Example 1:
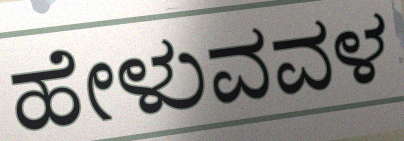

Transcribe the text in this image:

ಹೇಳುವವಳ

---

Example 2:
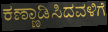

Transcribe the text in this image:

ಕಣ್ಣಾಡಿಸಿದವಳಿಗೆ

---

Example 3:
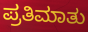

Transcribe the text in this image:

ಪ್ರತಿಮಾತು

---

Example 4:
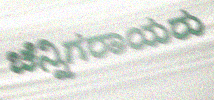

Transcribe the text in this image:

ಚೆನ್ನಿಗರಾಯರು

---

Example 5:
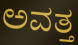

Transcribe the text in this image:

ಅವತ್ತ